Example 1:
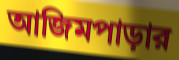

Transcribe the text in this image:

আজিমপাড়ার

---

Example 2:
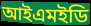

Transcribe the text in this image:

আইএমইডি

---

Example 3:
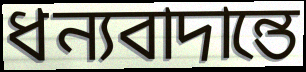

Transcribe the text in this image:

ধন্যবাদান্তে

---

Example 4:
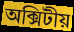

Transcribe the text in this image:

অক্সিটীয়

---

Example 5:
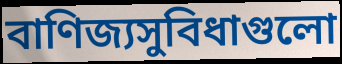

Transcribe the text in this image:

বাণিজ্যসুবিধাগুলো